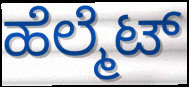
ಹೆಲ್ಮೆಟ್